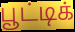
பூட்டிக்